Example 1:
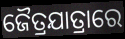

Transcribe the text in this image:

ଜୈତ୍ରଯାତ୍ରାରେ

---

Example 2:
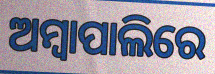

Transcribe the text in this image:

ଅମ୍ବାପାଲିରେ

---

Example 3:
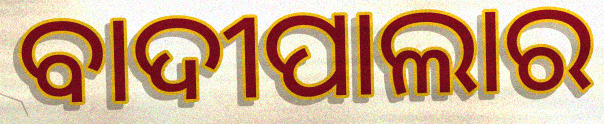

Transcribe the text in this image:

ବାଦୀପାଲାର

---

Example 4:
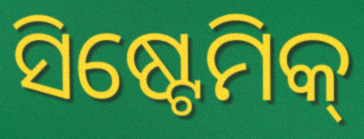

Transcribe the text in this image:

ସିଷ୍ଟେମିକ୍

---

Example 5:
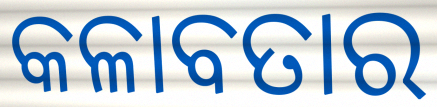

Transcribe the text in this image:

କଳାବତାର